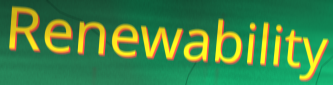
Renewability